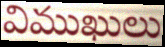
విముఖులు